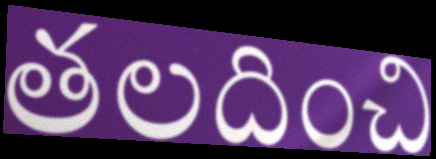
తలదించి